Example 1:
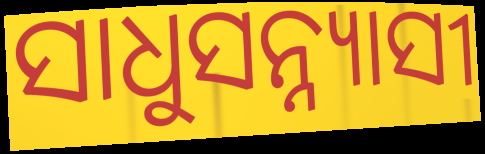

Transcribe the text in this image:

ସାଧୁସନ୍ନ୍ୟାସୀ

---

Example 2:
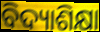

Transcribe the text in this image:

ବିଦ୍ୟାଶିକ୍ଷା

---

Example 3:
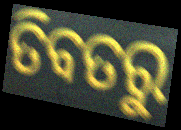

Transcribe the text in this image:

ତିବତରୁ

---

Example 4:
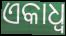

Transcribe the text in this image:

ଏକାଧ୍ଵ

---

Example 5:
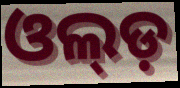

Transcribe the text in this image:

ଓଲ୍ଡ଼